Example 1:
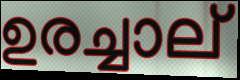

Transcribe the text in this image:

ഉരച്ചാല്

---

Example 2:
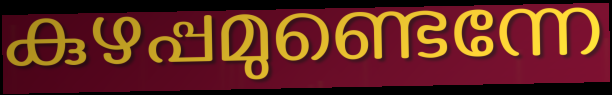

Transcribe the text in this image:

കുഴപ്പമുണ്ടെന്നേ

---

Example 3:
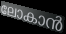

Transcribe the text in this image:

ലോകാൻ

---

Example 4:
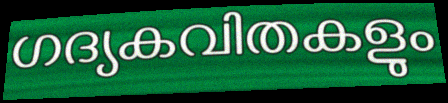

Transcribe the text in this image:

ഗദ്യകവിതകളും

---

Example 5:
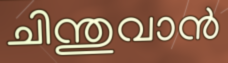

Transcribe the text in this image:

ചിന്തുവാൻ